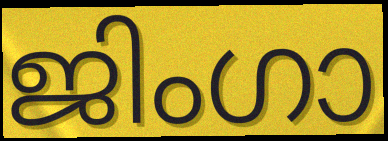
ജിംഗാ